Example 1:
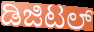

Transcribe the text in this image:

ಡಿಜಿಟಲ್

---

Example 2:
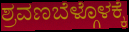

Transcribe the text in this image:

ಶ್ರವಣಬೆಳ್ಗೊಳಕ್ಕೆ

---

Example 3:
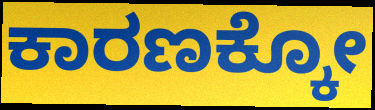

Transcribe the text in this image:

ಕಾರಣಕ್ಕೋ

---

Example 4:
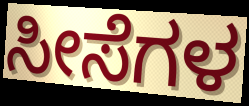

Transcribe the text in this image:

ಸೀಸೆಗಳ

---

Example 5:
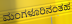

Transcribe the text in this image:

ಮಂಗಳೂರಿನಂತಹ